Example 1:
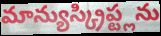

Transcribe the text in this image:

మాన్యుస్క్రిప్ట్లను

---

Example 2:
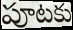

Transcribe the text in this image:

పూటకు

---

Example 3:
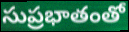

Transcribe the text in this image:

సుప్రభాతంతో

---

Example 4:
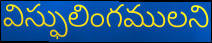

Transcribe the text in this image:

విస్ఫులింగములని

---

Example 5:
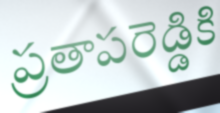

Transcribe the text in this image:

ప్రతాపరెడ్డికి